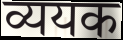
व्ययक